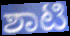
ಶಾಟಿ